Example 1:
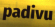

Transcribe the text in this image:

padivu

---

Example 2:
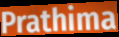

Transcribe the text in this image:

Prathima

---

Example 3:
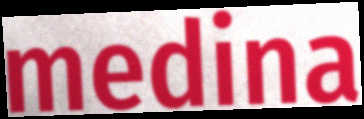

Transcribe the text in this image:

medina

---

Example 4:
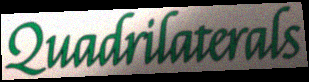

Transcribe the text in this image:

Quadrilaterals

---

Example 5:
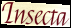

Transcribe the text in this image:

Insecta